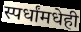
स्पर्धांमधेही